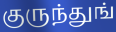
குருந்துங்